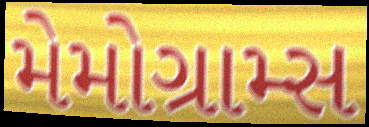
મેમોગ્રામ્સ